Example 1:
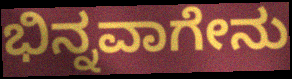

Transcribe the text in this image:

ಭಿನ್ನವಾಗೇನು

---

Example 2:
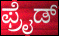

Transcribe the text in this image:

ಫ್ರೈಡ್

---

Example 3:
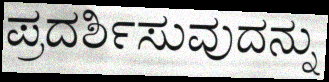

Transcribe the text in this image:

ಪ್ರದರ್ಶಿಸುವುದನ್ನು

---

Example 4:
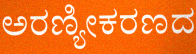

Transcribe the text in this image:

ಅರಣ್ಯೀಕರಣದ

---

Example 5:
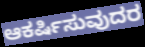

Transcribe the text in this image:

ಆಕರ್ಷಿಸುವುದರ